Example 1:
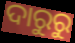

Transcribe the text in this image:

ଦାରୁରୁ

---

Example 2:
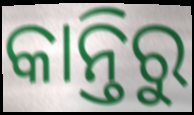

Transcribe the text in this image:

କାନ୍ତିରୁ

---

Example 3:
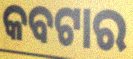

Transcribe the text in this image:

କବଟାର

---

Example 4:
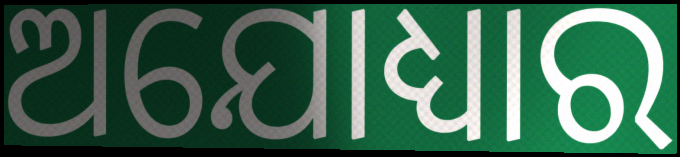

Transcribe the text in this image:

ଅଯୋଧ୍ୟାର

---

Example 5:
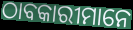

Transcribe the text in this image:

ଠାବକାରୀମାନେ